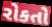
રોકતો